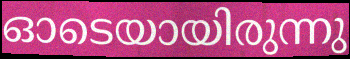
ഓടെയായിരുന്നു